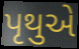
પૃથુએ